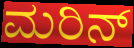
ಮರಿನ್